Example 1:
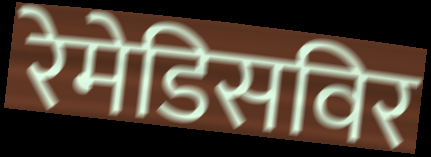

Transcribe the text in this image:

रेमेडिसविर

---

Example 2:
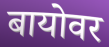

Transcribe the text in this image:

बायोवर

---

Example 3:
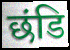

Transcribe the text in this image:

छंडि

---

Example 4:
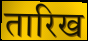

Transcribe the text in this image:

तारिख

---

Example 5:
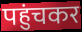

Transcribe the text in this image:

पहुंचकर